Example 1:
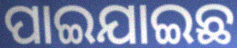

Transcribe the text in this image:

ପାଇଯାଇଛ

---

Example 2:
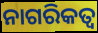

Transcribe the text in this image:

ନାଗରିକତ୍ୱ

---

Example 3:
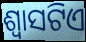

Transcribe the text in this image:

ଶ୍ଵାସଟିଏ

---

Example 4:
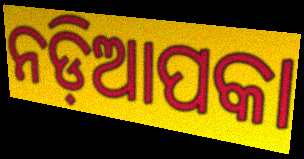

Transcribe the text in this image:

ନଡ଼ିଆପକା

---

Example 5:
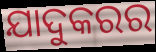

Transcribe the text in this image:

ଯାଦୁକରର